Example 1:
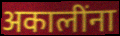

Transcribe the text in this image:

अकालींना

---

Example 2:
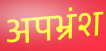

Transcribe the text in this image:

अपभ्रंश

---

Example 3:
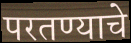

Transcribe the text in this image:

परतण्याचे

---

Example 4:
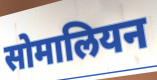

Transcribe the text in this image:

सोमालियन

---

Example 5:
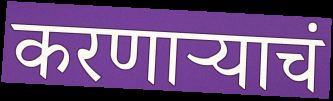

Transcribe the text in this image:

करणाऱ्याचं